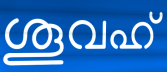
ശൂവഹ്